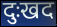
दुःखद